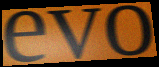
evo